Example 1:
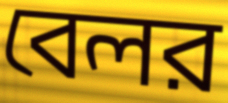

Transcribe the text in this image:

বেলর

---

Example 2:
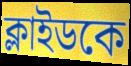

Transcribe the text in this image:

ক্লাইডকে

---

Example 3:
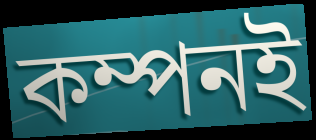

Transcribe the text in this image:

কম্পনই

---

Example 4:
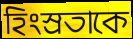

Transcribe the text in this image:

হিংস্রতাকে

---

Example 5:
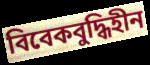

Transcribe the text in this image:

বিবেকবুদ্ধিহীন